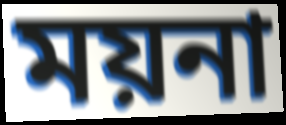
ময়না